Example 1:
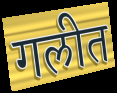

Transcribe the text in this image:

गलीत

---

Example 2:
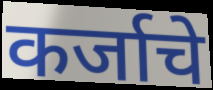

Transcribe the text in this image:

कर्जाचे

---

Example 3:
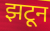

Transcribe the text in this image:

झटून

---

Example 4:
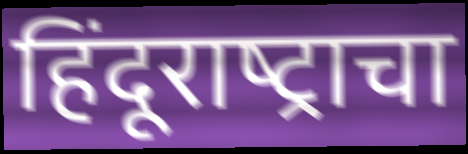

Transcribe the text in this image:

हिंदूराष्ट्राचा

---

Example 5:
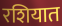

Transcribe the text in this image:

रशियात